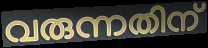
വരുന്നതിന്